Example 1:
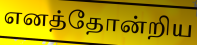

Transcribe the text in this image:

எனத்தோன்றிய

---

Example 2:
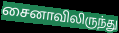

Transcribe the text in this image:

சைனாவிலிருந்து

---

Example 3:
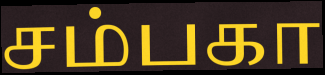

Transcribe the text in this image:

சம்பகா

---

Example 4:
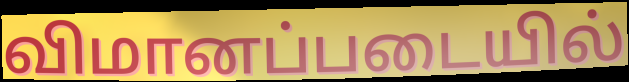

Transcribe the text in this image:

விமானப்படையில்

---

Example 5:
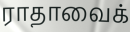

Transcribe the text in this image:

ராதாவைக்